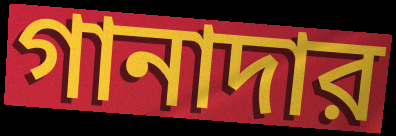
গানাদার